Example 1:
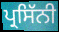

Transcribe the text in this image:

ਪ੍ਰਸਿੱਨੀ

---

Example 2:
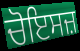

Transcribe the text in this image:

ਚੋਇਸਜ਼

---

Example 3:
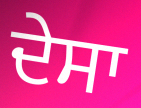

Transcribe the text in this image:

ਦੇਸਾ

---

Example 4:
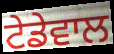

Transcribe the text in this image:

ਟੇਡੇਵਾਲ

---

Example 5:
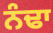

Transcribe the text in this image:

ਨੰਢਾ